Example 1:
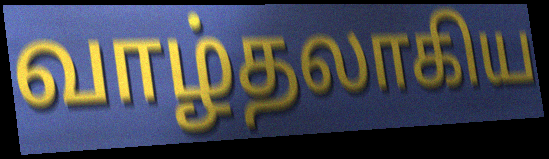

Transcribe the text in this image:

வாழ்தலாகிய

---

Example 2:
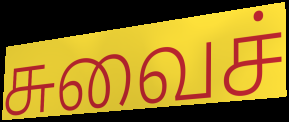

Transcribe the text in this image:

சுவைச்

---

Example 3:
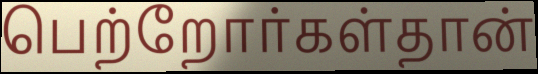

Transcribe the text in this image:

பெற்றோர்கள்தான்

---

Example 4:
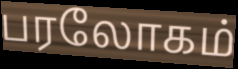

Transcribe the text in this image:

பரலோகம்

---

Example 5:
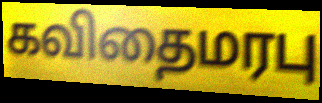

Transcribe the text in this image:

கவிதைமரபு